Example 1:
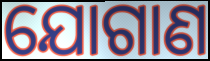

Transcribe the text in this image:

ଯୋଗାଣ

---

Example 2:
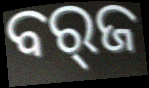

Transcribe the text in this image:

ବର୍‌ଜ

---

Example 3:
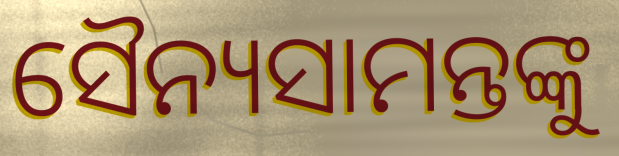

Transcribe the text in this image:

ସୈନ୍ୟସାମନ୍ତଙ୍କୁ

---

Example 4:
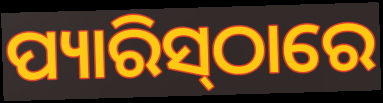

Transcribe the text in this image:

ପ୍ୟାରିସ୍‍ଠାରେ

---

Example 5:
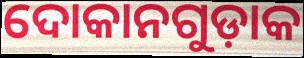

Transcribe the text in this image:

ଦୋକାନଗୁଡ଼ାକ